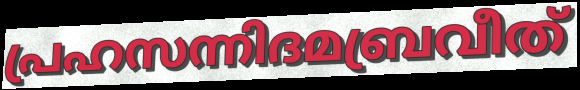
പ്രഹസന്നിദമബ്രവീത്